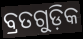
ବ୍ରତଗୁଡ଼ିକ